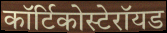
कॉर्टिकोस्टेरॉयड